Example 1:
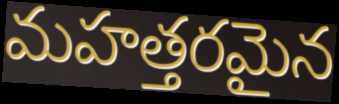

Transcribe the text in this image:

మహత్తరమైన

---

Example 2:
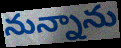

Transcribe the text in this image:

నున్నాను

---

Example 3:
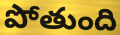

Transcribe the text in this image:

పోతుంది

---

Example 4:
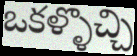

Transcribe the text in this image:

ఒకళ్ళొచ్చి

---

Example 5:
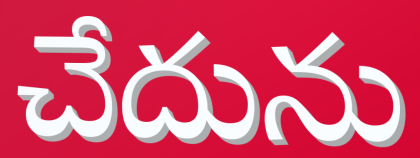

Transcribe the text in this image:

చేదును